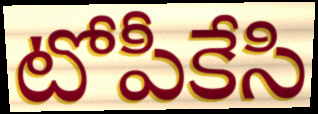
టోపీకేసి